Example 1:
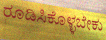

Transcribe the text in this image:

ರೂಡಿಸಿಕೊಳ್ಳಬೇಕು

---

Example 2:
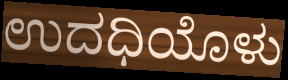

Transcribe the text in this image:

ಉದಧಿಯೊಳು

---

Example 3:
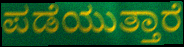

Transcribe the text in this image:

ಪಡೆಯುತ್ತಾರೆ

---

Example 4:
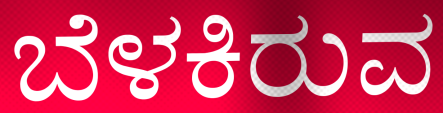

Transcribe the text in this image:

ಬೆಳಕಿರುವ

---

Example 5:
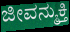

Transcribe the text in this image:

ಜೀವನ್ಮುಕ್ತಿ